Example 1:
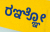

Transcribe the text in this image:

ರಞ್ಞೋ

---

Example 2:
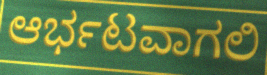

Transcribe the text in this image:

ಆರ್ಭಟವಾಗಲಿ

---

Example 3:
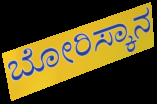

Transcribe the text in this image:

ಬೋರಿಸ್ಕಾನ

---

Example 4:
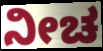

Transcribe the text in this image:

ನೀಚ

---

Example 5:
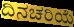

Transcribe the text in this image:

ದಿನಚರಿಯೆ